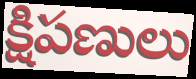
క్షిపణులు